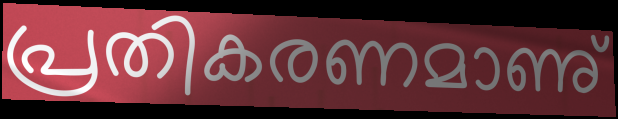
പ്രതികരണമാണു്